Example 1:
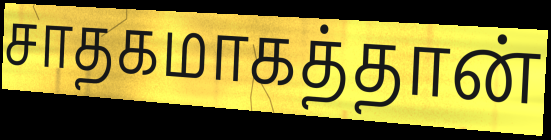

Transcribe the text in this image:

சாதகமாகத்தான்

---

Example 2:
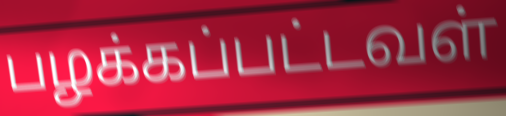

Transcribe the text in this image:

பழக்கப்பட்டவள்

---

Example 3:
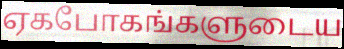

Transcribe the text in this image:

ஏகபோகங்களுடைய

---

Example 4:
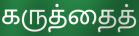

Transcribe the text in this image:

கருத்தைத்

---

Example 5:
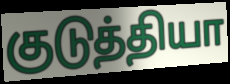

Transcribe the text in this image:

குடுத்தியா